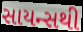
સાયન્સથી